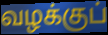
வழக்குப்